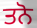
ਤਨੋ